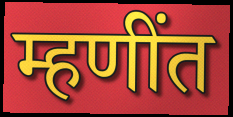
म्हणींत